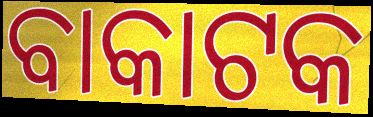
ବାକାଟକ